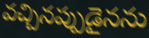
వచ్చినప్పుడైనను